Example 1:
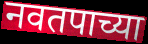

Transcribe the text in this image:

नवतपाच्या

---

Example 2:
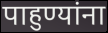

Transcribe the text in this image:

पाहुण्यांना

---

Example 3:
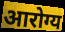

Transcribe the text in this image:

आरोग्य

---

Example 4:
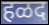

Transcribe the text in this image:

हळद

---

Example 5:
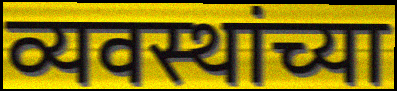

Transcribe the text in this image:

व्यवस्थांच्या